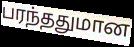
பரந்ததுமான